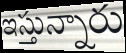
ఇస్తున్నారు